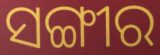
ସଙ୍ଗୀର